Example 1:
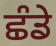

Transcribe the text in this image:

ਛੰਡੇ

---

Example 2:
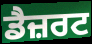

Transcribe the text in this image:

ਡੈਜ਼ਰਟ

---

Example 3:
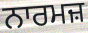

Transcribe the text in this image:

ਨਾਰਮਜ਼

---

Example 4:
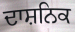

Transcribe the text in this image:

ਦਾਸ਼ਨਿਕ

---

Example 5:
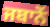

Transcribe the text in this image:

ਜਬਾਨੋਂ